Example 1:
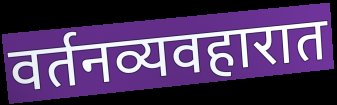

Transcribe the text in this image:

वर्तनव्यवहारात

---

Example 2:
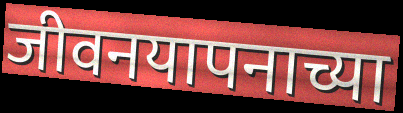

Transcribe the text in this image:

जीवनयापनाच्या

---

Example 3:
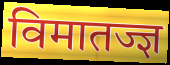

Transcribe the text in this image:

विमातज्ज्ञ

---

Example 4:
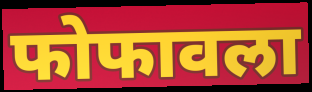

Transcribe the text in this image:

फोफावला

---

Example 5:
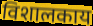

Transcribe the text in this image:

विशालकाय